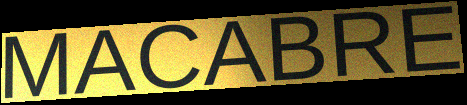
MACABRE